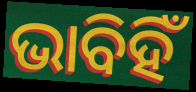
ଭାବିହିଁ